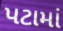
પટામાં